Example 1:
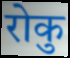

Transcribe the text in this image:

रोकु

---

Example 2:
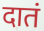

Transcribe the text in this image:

दातं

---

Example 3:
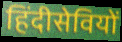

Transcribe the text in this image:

हिंदीसेवियों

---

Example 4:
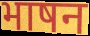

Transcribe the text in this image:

भाषन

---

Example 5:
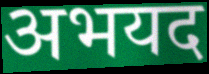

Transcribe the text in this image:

अभयद